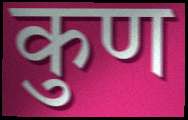
कुण